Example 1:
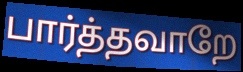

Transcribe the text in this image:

பார்த்தவாறே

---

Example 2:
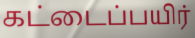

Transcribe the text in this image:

கட்டைப்பயிர்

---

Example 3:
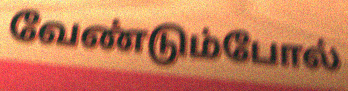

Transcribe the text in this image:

வேண்டும்போல்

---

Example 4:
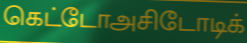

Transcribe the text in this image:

கெட்டோஅசிடோடிக்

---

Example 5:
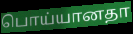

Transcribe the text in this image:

பொய்யானதா